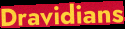
Dravidians